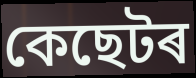
কেছেটৰ